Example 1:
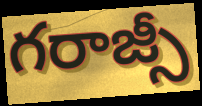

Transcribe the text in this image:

గరాజ్సీ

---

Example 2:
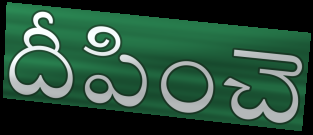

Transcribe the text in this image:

దీపించె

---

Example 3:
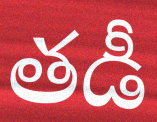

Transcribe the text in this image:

తడీ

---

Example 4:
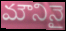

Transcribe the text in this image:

మౌనినై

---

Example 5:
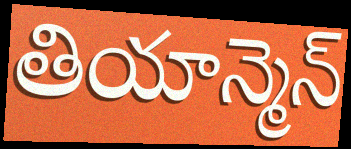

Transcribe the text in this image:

తియాన్మెన్